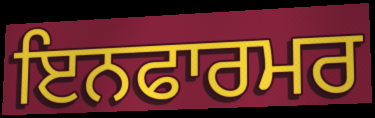
ਇਨਫਾਰਮਰ